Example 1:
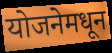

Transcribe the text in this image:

योजनेमधून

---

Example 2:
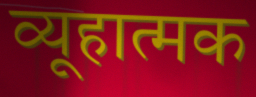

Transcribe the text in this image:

व्यूहात्मक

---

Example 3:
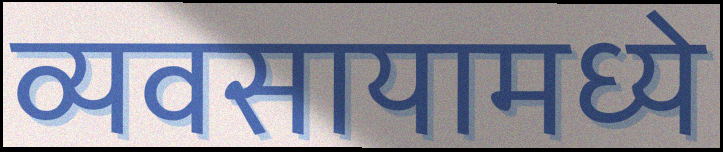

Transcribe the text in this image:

व्यवसायामध्ये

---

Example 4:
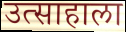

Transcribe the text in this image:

उत्साहाला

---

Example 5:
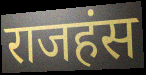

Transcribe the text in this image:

राजहंस